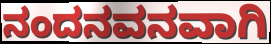
ನಂದನವನವಾಗಿ